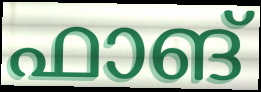
ഫാങ്